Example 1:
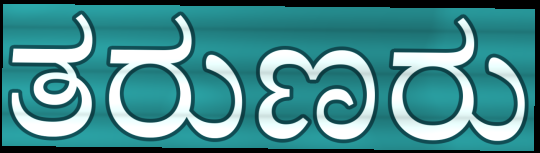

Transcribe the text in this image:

ತರುಣರು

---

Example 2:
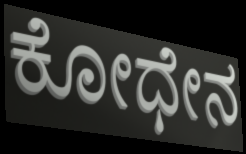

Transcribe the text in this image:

ಕೋಧೇನ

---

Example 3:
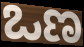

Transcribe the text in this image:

ಒಣ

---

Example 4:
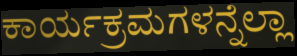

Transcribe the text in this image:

ಕಾರ್ಯಕ್ರಮಗಳನ್ನೆಲ್ಲಾ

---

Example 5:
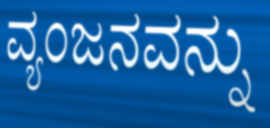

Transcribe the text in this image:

ವ್ಯಂಜನವನ್ನು